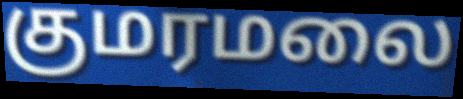
குமரமலை